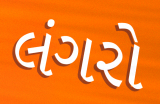
લંગરો